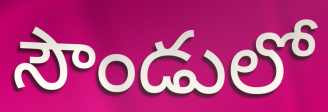
సౌండులో